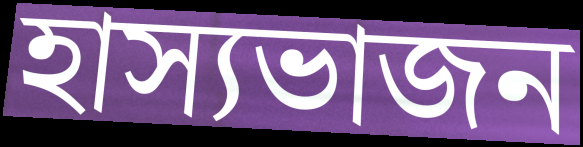
হাস্যভাজন